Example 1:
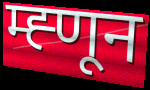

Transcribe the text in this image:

म्ह्णून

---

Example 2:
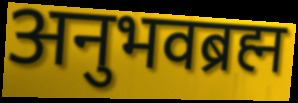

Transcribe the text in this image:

अनुभवब्रह्म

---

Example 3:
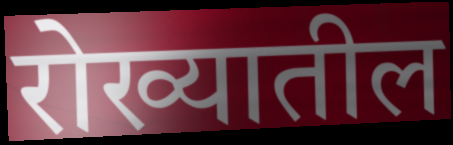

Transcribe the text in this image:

रोख्यातील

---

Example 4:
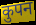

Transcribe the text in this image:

कुपन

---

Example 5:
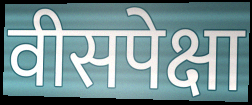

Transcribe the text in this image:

वीसपेक्षा